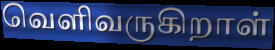
வெளிவருகிறாள்